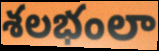
శలభంలా